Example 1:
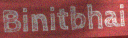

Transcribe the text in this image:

Binitbhai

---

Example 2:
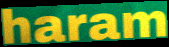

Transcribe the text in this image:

haram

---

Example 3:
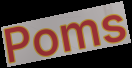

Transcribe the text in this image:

Poms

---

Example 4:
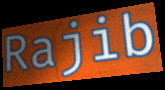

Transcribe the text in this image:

Rajib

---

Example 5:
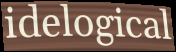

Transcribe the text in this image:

idelogical